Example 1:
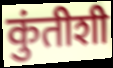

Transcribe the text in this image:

कुंतीशी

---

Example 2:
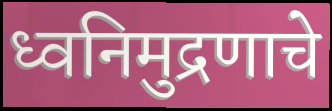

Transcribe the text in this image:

ध्वनिमुद्रणाचे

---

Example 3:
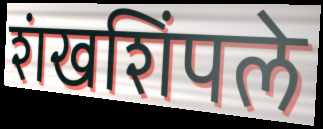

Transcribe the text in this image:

शंखशिंपले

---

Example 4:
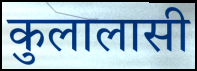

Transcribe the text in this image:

कुलालासी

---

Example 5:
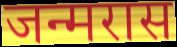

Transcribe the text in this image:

जन्मरास